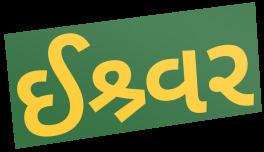
ઈશ્ર્વર